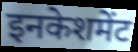
इनकेशमेंट